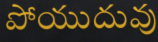
పోయుదువు